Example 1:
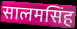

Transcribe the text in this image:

सालमसिंह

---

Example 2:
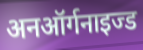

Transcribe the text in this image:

अनऑर्गनाइज्ड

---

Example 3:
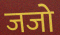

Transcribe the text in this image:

जजो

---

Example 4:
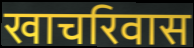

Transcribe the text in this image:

खाचरिवास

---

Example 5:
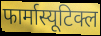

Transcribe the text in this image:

फार्मास्यूटिक्ल